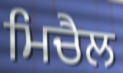
ਮਿਚੈਲ